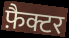
फ़ैक्टर